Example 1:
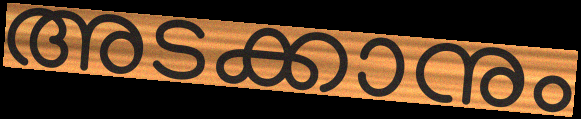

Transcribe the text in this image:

അടക്കാനും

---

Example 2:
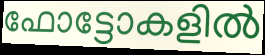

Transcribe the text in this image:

ഫോട്ടോകളിൽ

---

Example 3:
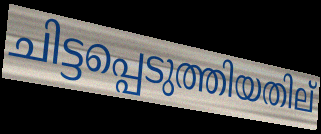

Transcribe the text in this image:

ചിട്ടപ്പെടുത്തിയതില്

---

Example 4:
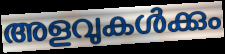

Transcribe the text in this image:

അളവുകൾക്കും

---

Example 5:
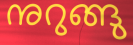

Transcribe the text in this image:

നുറുങ്ങു